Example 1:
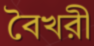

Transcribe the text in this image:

বৈখরী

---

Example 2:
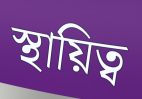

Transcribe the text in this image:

স্থায়িত্ব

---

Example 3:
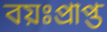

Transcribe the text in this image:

বয়ঃপ্রাপ্ত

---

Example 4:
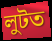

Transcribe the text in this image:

লুটত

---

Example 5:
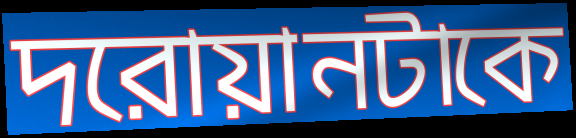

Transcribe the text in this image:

দরোয়ানটাকে